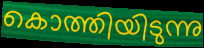
കൊത്തിയിടുന്നു